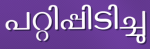
പറ്റിപ്പിടിച്ചു